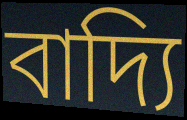
বাদ্যি